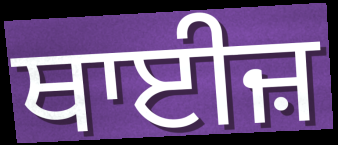
ਥਾਈਜ਼